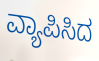
ವ್ಯಾಪಿಸಿದ